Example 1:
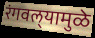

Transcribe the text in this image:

रंगवल्यामुळे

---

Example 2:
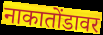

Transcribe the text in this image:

नाकातोंडावर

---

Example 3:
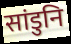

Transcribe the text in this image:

सांडुनि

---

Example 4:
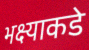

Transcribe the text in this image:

भक्ष्याकडे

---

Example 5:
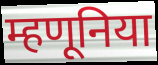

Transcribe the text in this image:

म्हणूनिया